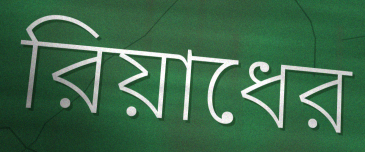
রিয়াধের